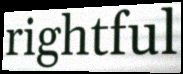
rightful